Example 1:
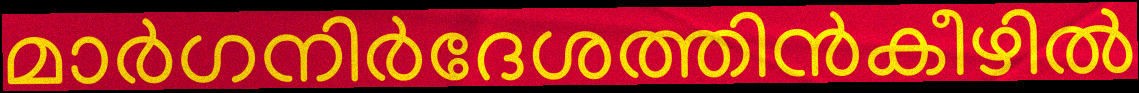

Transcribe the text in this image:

മാർഗനിർദേശത്തിൻകീഴിൽ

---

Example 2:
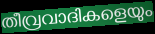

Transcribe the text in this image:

തീവ്രവാദികളെയും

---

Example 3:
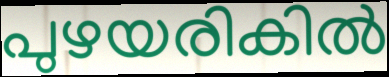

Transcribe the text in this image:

പുഴയരികിൽ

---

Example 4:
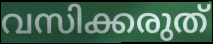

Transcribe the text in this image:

വസിക്കരുത്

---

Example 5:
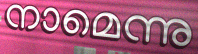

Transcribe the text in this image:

നാമെന്നു